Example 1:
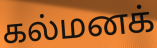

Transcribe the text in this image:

கல்மனக்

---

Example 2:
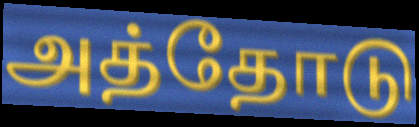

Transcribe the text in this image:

அத்தோடு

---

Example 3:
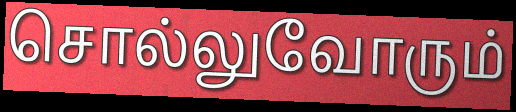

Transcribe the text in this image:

சொல்லுவோரும்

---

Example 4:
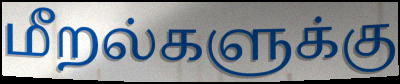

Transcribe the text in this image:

மீறல்களுக்கு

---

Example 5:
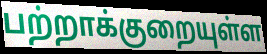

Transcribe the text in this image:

பற்றாக்குறையுள்ள